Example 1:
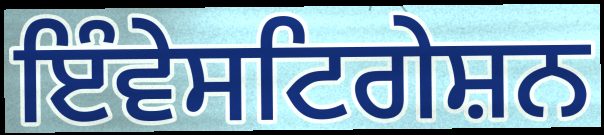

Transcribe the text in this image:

ਇੰਵੇਸਟਿਗੇਸ਼ਨ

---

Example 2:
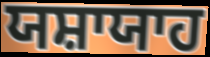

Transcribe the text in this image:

ਯਸ਼ਾਯਾਹ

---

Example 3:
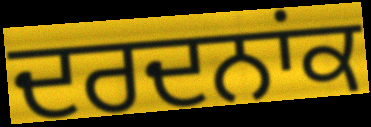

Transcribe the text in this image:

ਦਰਦਨਾਂਕ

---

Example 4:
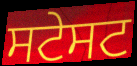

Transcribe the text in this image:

ਸਟੇਸਟ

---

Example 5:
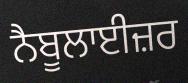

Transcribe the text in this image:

ਨੈਬੂਲਾਈਜ਼ਰ